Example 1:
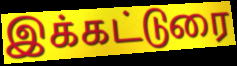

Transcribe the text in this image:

இக்கட்டுரை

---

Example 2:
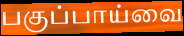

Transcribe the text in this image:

பகுப்பாய்வை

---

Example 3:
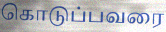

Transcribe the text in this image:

கொடுப்பவரை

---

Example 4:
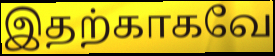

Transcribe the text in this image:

இதற்காகவே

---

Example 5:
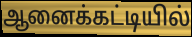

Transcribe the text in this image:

ஆனைக்கட்டியில்